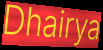
Dhairya